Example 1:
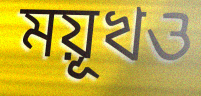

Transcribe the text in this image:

ময়ূখও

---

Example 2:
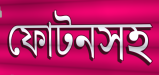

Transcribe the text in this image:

ফোটনসহ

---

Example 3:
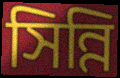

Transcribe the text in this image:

সিন্নি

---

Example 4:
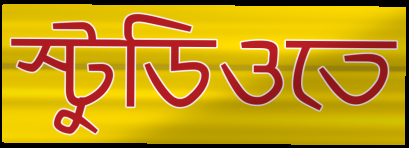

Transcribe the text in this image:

স্টুডিওতে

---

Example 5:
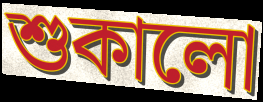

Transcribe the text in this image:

শুকালো